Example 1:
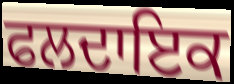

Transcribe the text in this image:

ਫਲਦਾਇਕ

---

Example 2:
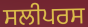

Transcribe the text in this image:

ਸਲੀਪਰਸ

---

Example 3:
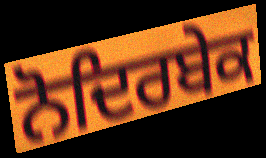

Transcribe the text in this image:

ਨੋਦਿਰਬੇਕ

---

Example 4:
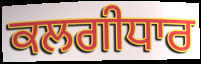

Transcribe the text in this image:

ਕਲਗੀਧਾਰ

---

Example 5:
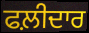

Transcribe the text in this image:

ਫਲ਼ੀਦਾਰ